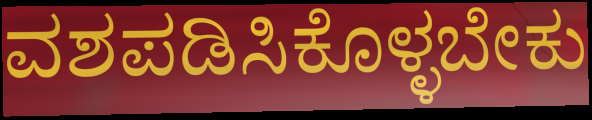
ವಶಪಡಿಸಿಕೊಳ್ಳಬೇಕು